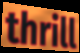
thrill